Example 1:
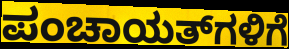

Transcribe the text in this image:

ಪಂಚಾಯತ್‌ಗಳಿಗೆ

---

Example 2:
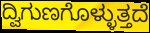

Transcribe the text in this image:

ದ್ವಿಗುಣಗೊಳ್ಳುತ್ತದೆ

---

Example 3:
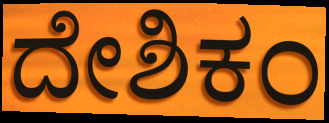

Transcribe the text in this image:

ದೇಶಿಕಂ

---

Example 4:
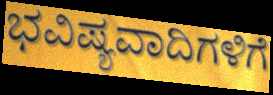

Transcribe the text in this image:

ಭವಿಷ್ಯವಾದಿಗಳಿಗೆ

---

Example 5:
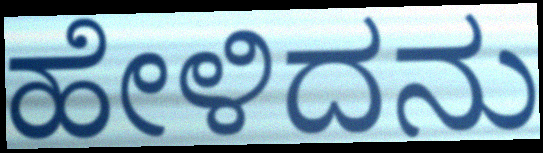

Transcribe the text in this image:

ಹೇಳಿದನು